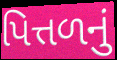
પિત્તળનું